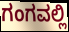
ಗಂಗವಲ್ಲಿ